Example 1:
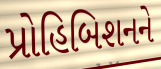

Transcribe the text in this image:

પ્રોહિબિશનને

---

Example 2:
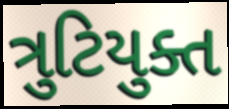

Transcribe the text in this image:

ત્રુટિયુક્ત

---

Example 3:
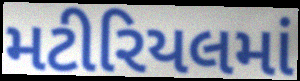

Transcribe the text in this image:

મટીરિયલમાં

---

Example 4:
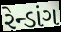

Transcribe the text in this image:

રેન્ડાંગ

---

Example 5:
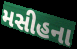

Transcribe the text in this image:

મસીહના